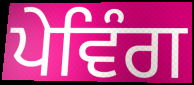
ਪੇਵਿੰਗ